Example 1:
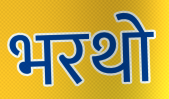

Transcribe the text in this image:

भरथो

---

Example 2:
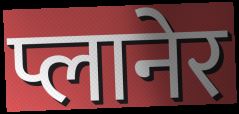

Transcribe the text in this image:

प्लानेर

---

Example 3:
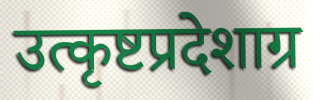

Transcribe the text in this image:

उत्कृष्टप्रदेशाग्र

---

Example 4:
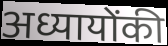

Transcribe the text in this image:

अध्यायोंकी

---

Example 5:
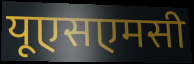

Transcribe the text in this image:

यूएसएमसी